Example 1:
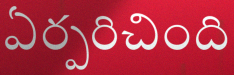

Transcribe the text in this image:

ఏర్పరిచింది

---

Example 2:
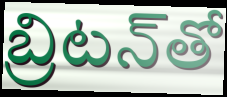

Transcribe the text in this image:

బ్రిటన్‌తో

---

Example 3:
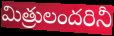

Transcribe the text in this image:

మిత్రులందరినీ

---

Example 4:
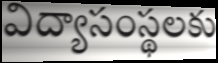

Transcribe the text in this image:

విద్యాసంస్థలకు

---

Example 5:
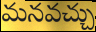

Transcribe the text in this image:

మనవచ్చు